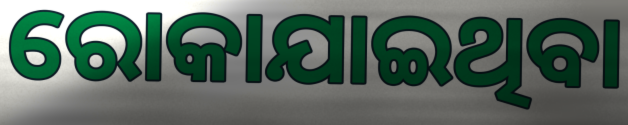
ରୋକାଯାଇଥିବା